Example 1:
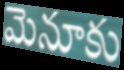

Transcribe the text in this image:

మెనూకు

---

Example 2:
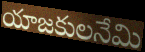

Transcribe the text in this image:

యాజకులనేమి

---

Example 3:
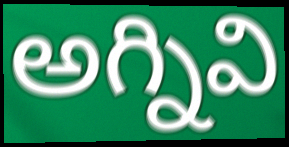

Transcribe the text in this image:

అగ్నివి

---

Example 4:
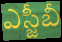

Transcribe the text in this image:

ఎస్జీబీ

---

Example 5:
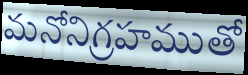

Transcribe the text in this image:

మనోనిగ్రహముతో